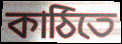
কাঠিতে